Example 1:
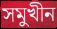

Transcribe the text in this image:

সমুখীন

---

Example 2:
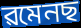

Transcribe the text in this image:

ৱমেনছ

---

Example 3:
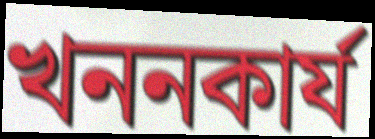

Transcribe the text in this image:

খননকাৰ্য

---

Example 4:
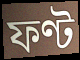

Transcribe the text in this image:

ফণ্ট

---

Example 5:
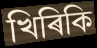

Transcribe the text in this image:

খিৰিকি